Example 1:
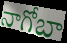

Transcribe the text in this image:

నాగోబా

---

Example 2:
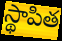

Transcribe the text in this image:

స్థాపిత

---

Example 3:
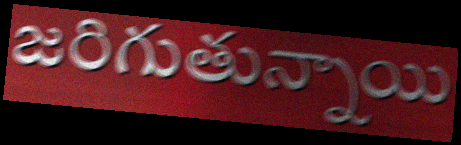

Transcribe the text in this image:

జరిగుతున్నాయి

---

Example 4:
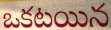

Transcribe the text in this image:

ఒకటయిన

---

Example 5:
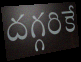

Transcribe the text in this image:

దగ్గరికే